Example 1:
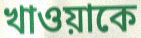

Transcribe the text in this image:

খাওয়াকে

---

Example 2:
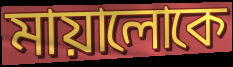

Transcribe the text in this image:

মায়ালোকে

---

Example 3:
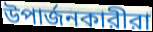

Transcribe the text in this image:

উপার্জনকারীরা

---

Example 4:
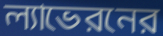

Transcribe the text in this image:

ল্যাভেরনের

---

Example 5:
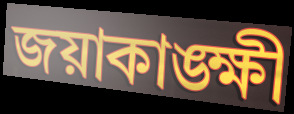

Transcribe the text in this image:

জয়াকাঙ্ক্ষী